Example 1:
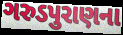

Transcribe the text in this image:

ગરુડપુરાણના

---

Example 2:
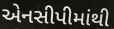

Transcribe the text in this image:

એનસીપીમાંથી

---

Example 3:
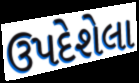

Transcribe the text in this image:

ઉપદેશેલા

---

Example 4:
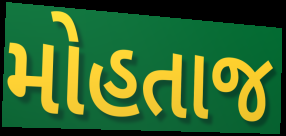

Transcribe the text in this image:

મોહતાજ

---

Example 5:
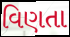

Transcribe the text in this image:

વિણતા